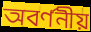
অবর্ণনীয়